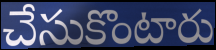
చేసుకొంటారు